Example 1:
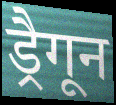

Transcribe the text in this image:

ड्रैगून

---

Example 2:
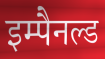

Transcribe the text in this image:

इम्पैनल्ड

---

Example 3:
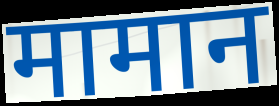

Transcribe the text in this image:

मामान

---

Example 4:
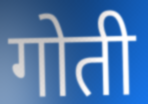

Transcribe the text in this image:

गोती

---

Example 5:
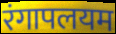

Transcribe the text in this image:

रंगापलयम